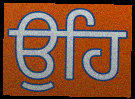
ਉਹਿ